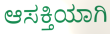
ಆಸಕ್ತಿಯಾಗಿ